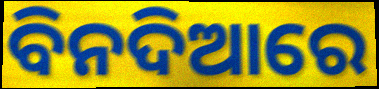
ବିନଦିଆରେ